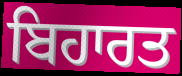
ਬਿਹਾਰਤ